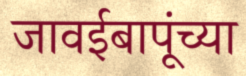
जावईबापूंच्या